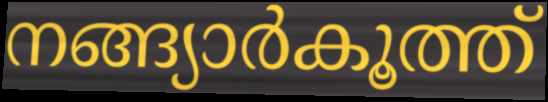
നങ്ങ്യാർകൂത്ത്